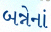
બન્નેનાં